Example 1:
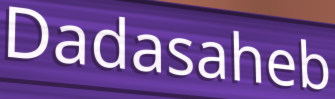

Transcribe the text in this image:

Dadasaheb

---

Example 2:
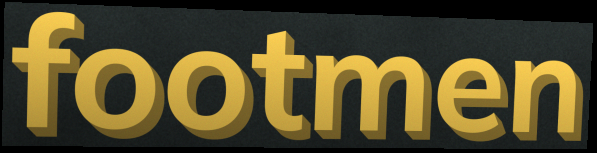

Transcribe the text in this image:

footmen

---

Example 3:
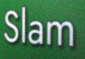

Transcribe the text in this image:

Slam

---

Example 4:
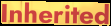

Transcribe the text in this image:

Inherited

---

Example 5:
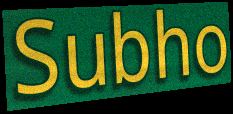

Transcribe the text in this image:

Subho